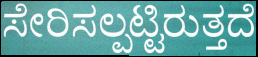
ಸೇರಿಸಲ್ಪಟ್ಟಿರುತ್ತದೆ